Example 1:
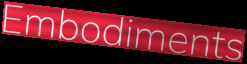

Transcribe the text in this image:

Embodiments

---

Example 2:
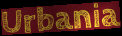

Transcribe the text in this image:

Urbania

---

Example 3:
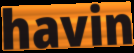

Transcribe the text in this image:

havin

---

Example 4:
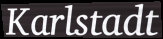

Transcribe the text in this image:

Karlstadt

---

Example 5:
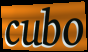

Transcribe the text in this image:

cubo